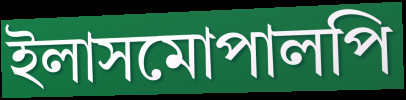
ইলাসমোপালপি